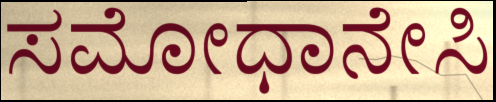
ಸಮೋಧಾನೇಸಿ